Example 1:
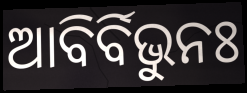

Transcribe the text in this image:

ଆବିର୍ବିଭୁନଃ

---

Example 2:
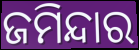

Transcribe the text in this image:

ଜମିନ୍ଦାର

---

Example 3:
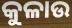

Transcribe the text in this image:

କୁଳାଉ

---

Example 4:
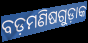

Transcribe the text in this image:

ବଡ଼ମଣିଷଗୁଡ଼ାକ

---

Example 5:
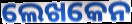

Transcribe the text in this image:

ଲେଖକେନ